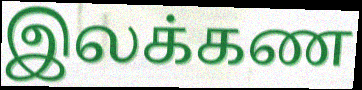
இலக்கண